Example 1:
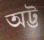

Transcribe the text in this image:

অট্ট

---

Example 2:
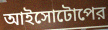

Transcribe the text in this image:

আইসোটোপের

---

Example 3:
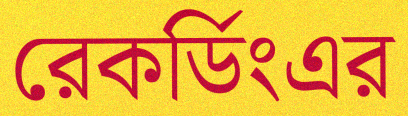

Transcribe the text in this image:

রেকর্ডিংএর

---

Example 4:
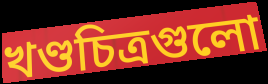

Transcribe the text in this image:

খণ্ডচিত্রগুলো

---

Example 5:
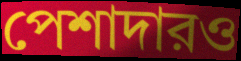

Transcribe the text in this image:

পেশাদারও